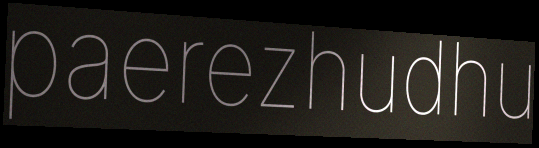
paerezhudhu